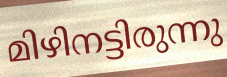
മിഴിനട്ടിരുന്നു